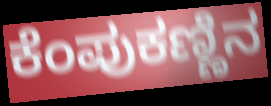
ಕೆಂಪುಕಣ್ಣಿನ